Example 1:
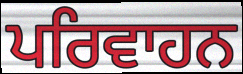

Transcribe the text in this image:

ਪਰਿਵਾਹਨ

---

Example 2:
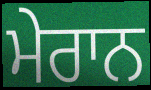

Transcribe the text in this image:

ਮੇਰਾਨ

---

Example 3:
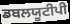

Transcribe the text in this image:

ਡਬਲਯੂਟੀਪੀ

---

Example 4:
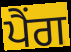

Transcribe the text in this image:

ਪੈਂਗ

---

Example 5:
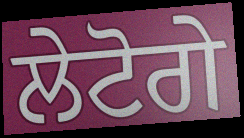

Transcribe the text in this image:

ਲੇਟੋਗੇ